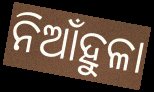
ନିଆଁହୁଳା